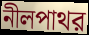
নীলপাথর